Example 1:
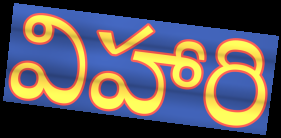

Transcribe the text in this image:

విహారి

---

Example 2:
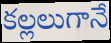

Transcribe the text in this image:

కల్లలుగానే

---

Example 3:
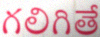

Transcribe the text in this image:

గలిగితే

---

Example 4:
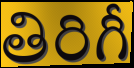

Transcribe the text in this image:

తిరిగీ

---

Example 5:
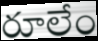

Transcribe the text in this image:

రూలేం